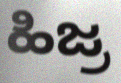
ಹಿಜ್ರ